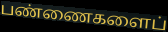
பண்ணைகளைப்